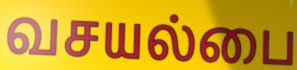
வசயல்பை